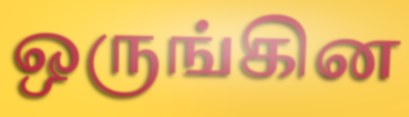
ஒருங்கின